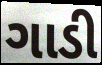
ગાડી